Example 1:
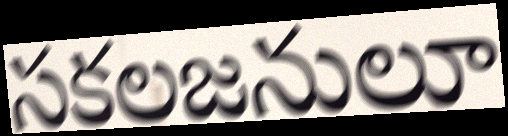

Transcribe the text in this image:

సకలజనులూ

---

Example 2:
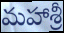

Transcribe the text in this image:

మహాశ్రీ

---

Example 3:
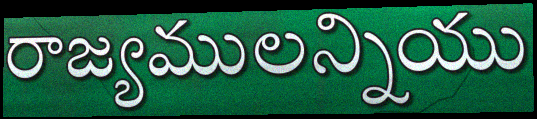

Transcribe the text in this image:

రాజ్యములన్నియు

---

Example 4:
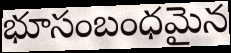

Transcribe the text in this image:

భూసంబంధమైన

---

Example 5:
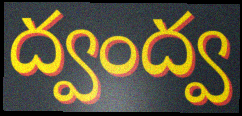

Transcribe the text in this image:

ద్వంద్వ